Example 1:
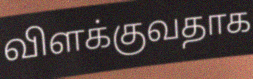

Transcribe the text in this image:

விளக்குவதாக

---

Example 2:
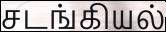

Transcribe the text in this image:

சடங்கியல்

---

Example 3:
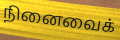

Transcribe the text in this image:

நினைவைக்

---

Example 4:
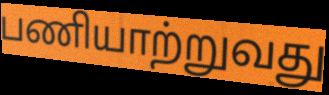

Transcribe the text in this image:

பணியாற்றுவது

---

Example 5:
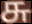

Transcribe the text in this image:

சு